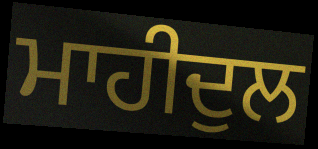
ਮਾਹੀਦੁਲ